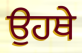
ਉਹਥੇ